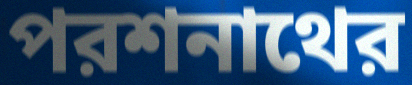
পরশনাথের